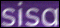
sisa